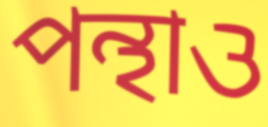
পন্থাও